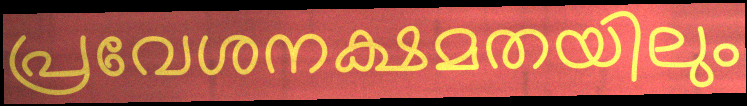
പ്രവേശനക്ഷമതയിലും